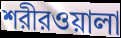
শরীরওয়ালা